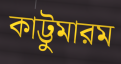
কাট্টুমারম